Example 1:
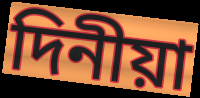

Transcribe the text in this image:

দিনীয়া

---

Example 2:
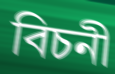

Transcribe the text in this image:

বিচনী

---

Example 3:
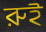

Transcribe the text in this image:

ৰুই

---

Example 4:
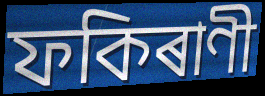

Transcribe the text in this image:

ফকিৰাণী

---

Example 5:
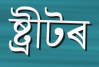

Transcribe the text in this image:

ষ্ট্ৰীটৰ